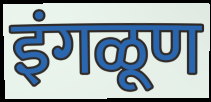
इंगळूण